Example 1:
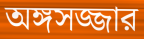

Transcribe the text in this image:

অঙ্গসজ্জার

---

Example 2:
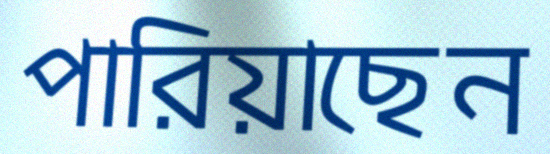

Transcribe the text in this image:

পারিয়াছেন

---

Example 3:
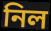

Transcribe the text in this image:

নিল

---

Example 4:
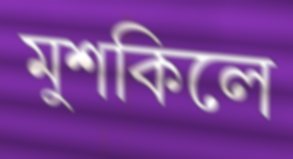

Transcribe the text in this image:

মুশকিলে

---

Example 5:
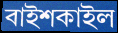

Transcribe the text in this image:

বাইশকাইল